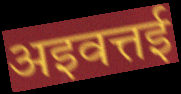
अइवत्तई